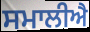
ਸਮਾਲੀਐ